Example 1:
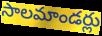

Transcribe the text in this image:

సాలమాండర్లు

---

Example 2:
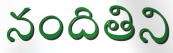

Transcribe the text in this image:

నందితిని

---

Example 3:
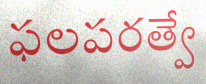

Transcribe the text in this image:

ఫలపరత్వే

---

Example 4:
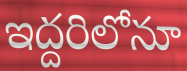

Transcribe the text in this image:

ఇద్దరిలోనూ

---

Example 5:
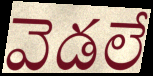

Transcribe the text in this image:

వెడలే